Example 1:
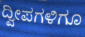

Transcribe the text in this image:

ದ್ವೀಪಗಳಿಗೂ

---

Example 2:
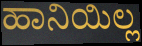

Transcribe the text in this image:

ಹಾನಿಯಿಲ್ಲ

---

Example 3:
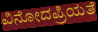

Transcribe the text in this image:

ವಿನೋದಪ್ರಿಯತೆ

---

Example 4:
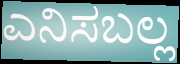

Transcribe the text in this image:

ಎನಿಸಬಲ್ಲ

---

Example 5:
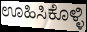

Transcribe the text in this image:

ಊಹಿಸಿಕೊಳ್ಳಿ